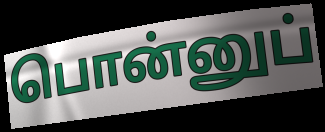
பொன்னுப்